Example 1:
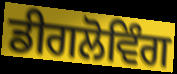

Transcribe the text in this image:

ਡੀਗਲੋਵਿੰਗ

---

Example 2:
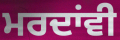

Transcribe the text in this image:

ਮਰਦਾਂਵੀ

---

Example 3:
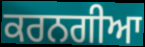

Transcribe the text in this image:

ਕਰਨਗੀਆ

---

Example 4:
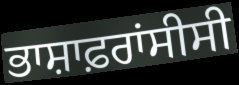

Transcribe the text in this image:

ਭਾਸ਼ਾਫ਼ਰਾਂਸੀਸੀ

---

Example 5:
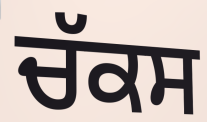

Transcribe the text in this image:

ਚੱਕਸ